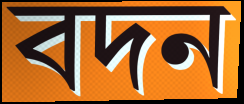
বদন